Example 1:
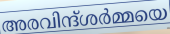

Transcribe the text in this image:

അരവിന്ദ്ശർമ്മയെ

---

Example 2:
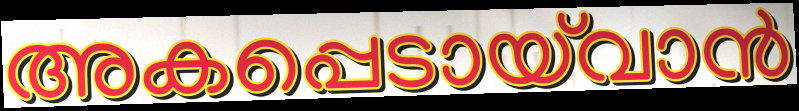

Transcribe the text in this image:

അകപ്പെടായ്‌വാൻ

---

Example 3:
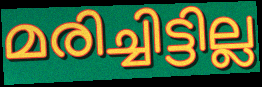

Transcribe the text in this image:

മരിച്ചിട്ടില്ല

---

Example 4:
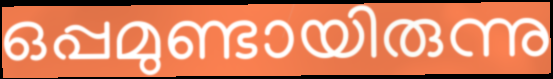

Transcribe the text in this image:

ഒപ്പമുണ്ടായിരുന്നു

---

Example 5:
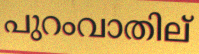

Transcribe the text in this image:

പുറംവാതില്